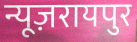
न्यूज़रायपुर